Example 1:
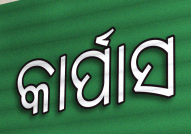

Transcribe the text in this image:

କାର୍ପାସ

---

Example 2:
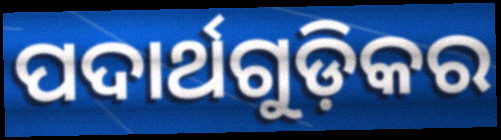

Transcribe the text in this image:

ପଦାର୍ଥଗୁଡ଼ିକର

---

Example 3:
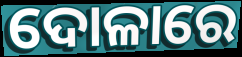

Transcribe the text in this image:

ଦୋଳାରେ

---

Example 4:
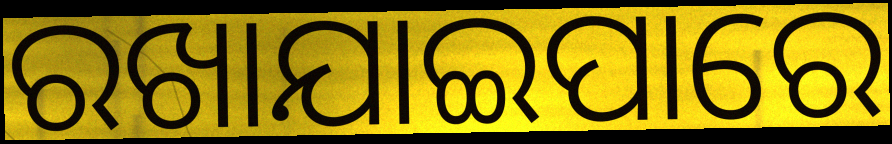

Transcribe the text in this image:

ରଖାଯାଇପାରେ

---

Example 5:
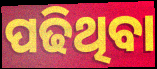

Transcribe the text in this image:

ପଢିଥିବା